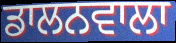
ਡਾਲਨਵਾਲਾ